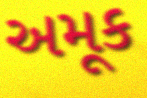
અમૂક